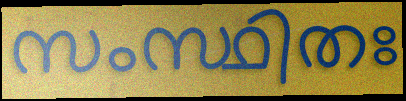
സംസ്ഥിതഃ